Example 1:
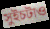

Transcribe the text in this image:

সুইচটাও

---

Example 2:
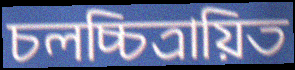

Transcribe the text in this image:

চলচ্চিত্রায়িত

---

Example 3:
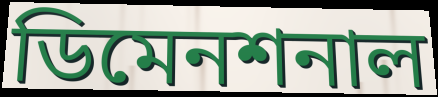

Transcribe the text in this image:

ডিমেনশনাল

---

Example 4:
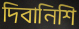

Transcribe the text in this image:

দিবানিশি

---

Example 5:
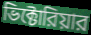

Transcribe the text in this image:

ভিক্টোরিয়ার